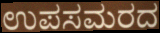
ಉಪಸಮರದ